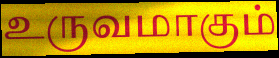
உருவமாகும்